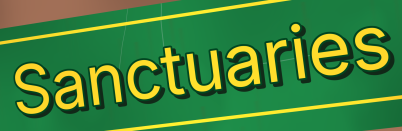
Sanctuaries